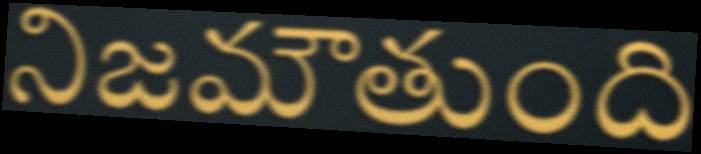
నిజమౌతుంది